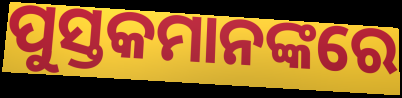
ପୁସ୍ତକମାନଙ୍କରେ